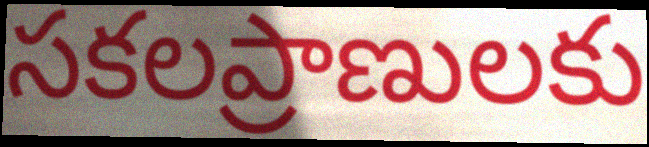
సకలప్రాణులకు